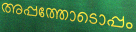
അപ്പത്തോടൊപ്പം